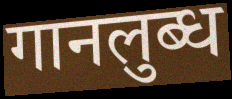
गानलुब्ध